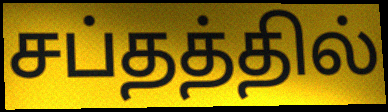
சப்தத்தில்